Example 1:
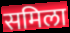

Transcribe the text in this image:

समिला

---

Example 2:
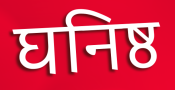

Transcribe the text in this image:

घनिष्ठ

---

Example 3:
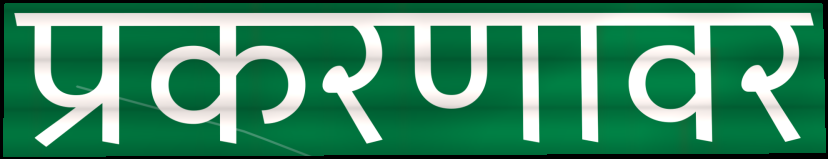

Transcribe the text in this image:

प्रकरणावर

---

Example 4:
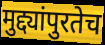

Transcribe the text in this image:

मुद्द्यांपुरतेच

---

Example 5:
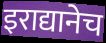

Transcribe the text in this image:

इराद्यानेच